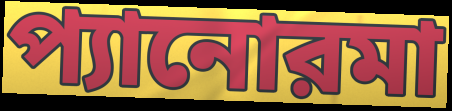
প্যানোরমা